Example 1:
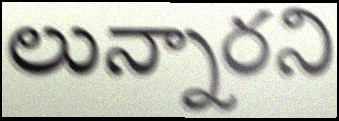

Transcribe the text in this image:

లున్నారని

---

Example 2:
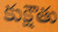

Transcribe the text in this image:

కుక్షౌతు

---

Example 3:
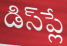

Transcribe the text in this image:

డిస్‌ప్లే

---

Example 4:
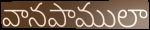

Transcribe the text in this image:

వానపాములా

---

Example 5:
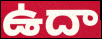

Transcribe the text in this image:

ఉదా